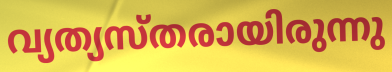
വ്യത്യസ്തരായിരുന്നു